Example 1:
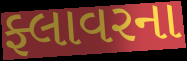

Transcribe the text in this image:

ફ્લાવરના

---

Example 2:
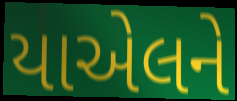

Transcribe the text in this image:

યાએલને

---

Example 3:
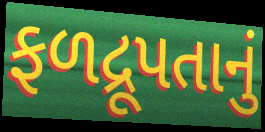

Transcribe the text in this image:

ફળદ્રૂપતાનું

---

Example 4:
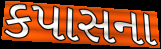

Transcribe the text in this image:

કપાસના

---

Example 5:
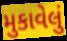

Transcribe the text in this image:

મુકાવેલું